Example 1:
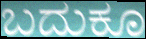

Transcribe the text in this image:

ಬದುಕೂ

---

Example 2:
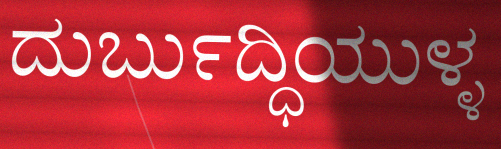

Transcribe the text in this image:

ದುರ್ಬುದ್ಧಿಯುಳ್ಳ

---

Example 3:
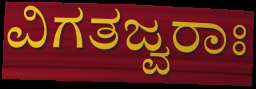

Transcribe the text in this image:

ವಿಗತಜ್ವರಾಃ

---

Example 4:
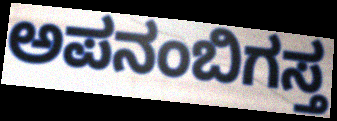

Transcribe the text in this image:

ಅಪನಂಬಿಗಸ್ತ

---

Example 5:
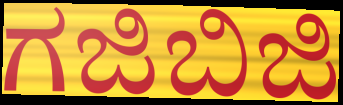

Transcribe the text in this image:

ಗಜಿಬಿಜಿ